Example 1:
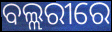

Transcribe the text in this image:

ବଲ୍ଲରୀରେ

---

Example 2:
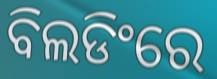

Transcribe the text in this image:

ବିଲଡିଂରେ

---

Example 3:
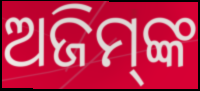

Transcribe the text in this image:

ଅଜିମ୍‌ଙ୍କ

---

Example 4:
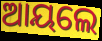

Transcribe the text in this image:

ଆୟଲେ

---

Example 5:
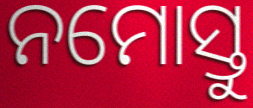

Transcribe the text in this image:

ନମୋସ୍ତୁ